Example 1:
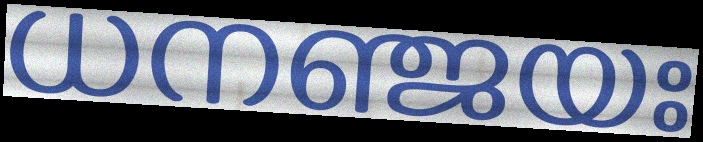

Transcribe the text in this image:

ധനഞ്ജയഃ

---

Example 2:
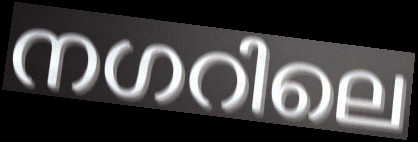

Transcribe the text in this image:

നഗറിലെ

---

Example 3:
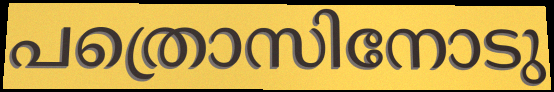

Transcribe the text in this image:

പത്രൊസിനോടു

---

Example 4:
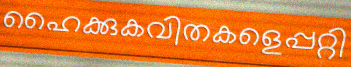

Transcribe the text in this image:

ഹൈക്കുകവിതകളെപ്പറ്റി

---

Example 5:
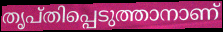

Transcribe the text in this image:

തൃപ്തിപ്പെടുത്താനാണ്